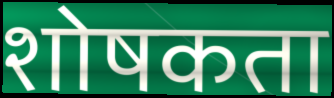
शोषकता